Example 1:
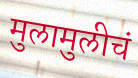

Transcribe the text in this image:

मुलामुलीचं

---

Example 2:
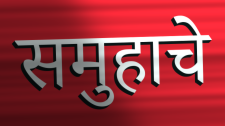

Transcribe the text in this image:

समुहाचे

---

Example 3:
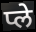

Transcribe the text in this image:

प्ले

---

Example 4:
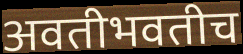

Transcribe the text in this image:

अवतीभवतीच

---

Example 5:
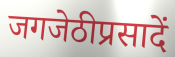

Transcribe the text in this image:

जगजेठीप्रसादें